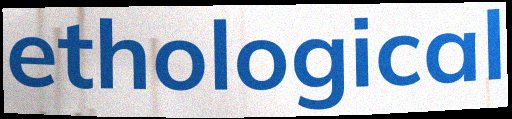
ethological